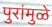
पुरांमुळे